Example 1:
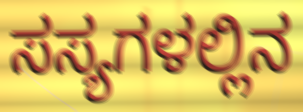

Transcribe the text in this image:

ಸಸ್ಯಗಳಲ್ಲಿನ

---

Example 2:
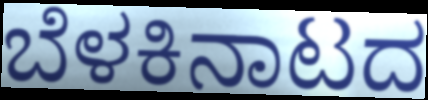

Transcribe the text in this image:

ಬೆಳಕಿನಾಟದ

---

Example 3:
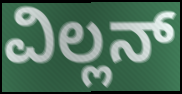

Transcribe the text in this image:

ವಿಲ್ಲನ್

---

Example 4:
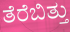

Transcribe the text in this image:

ತೆರೆಬಿತ್ತು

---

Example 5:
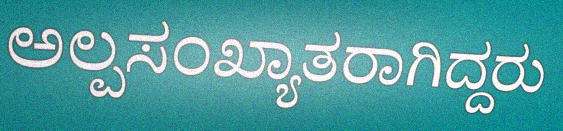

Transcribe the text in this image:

ಅಲ್ಪಸಂಖ್ಯಾತರಾಗಿದ್ದರು